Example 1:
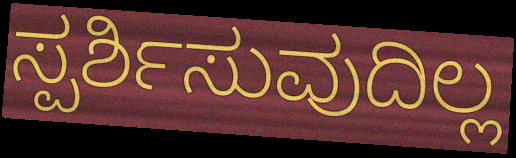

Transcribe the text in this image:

ಸ್ಪರ್ಶಿಸುವುದಿಲ್ಲ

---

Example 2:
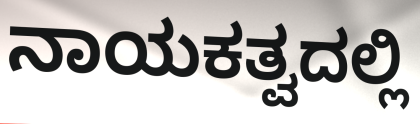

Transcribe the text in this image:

ನಾಯಕತ್ವದಲ್ಲಿ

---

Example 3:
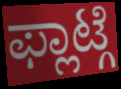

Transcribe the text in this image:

ಫ್ಲಾಟ್ಗೆ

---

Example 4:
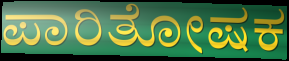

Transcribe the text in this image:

ಪಾರಿತೋಷಕ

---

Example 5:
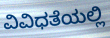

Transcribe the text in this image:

ವಿವಿಧತೆಯಲ್ಲಿ